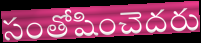
సంతోషించెదరు